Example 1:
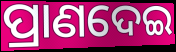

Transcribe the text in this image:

ପ୍ରାଣଦେଇ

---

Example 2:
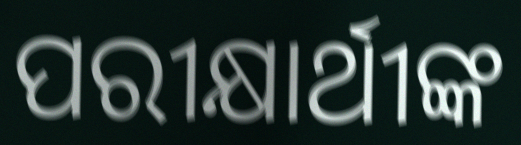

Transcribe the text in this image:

ପରୀକ୍ଷାର୍ଥୀଙ୍କ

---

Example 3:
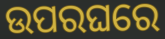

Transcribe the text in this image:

ଉପରଘରେ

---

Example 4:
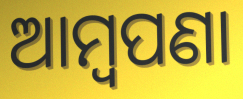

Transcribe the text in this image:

ଆମ୍ବପଣା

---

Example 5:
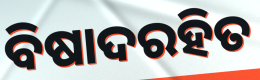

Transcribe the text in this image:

ବିଷାଦରହିତ